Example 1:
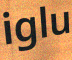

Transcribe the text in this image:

iglu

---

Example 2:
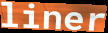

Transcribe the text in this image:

liner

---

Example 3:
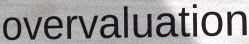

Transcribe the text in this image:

overvaluation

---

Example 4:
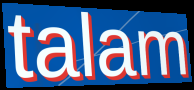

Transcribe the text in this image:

talam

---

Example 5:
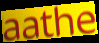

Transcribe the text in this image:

aathe